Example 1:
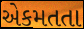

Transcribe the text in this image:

એકમતતા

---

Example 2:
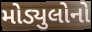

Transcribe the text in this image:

મોડ્યુલોનો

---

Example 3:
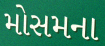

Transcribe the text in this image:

મોસમના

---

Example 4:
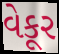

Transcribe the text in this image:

વેકૂર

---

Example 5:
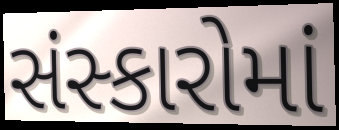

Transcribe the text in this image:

સંસ્કારોમાં